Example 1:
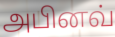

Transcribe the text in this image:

அபினவ்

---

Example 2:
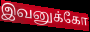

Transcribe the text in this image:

இவனுக்கோ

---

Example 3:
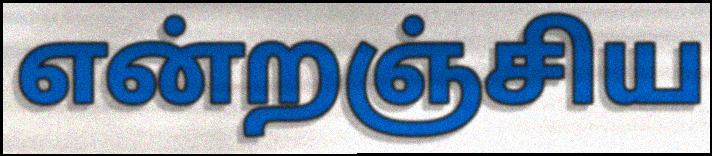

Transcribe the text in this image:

என்றஞ்சிய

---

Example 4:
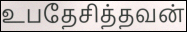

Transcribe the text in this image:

உபதேசித்தவன்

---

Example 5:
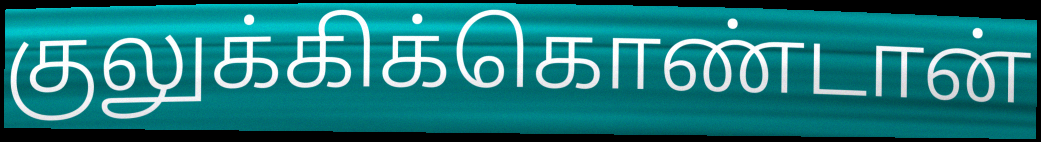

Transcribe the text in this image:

குலுக்கிக்கொண்டான்